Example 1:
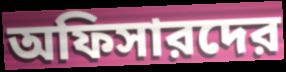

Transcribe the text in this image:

অফিসারদের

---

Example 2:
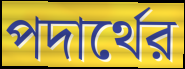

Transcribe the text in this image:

পদার্থের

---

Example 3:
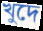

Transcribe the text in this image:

খুদে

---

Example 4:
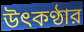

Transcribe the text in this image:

উৎকণ্ঠার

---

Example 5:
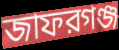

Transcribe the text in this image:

জাফরগঞ্জ